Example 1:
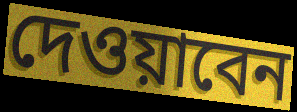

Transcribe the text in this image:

দেওয়াবেন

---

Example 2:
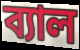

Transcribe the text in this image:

ব্যাল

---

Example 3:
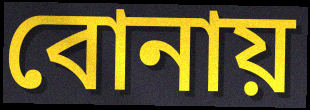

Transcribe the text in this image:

বোনায়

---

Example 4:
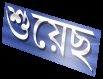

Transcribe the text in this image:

শুয়েছ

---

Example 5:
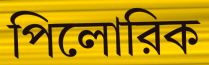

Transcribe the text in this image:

পিলোরিক